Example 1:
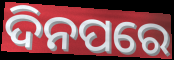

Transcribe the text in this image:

ଦିନପରେ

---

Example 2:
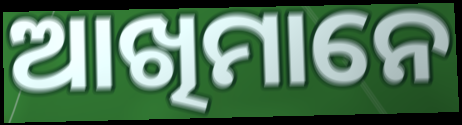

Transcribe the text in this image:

ଆଖିମାନେ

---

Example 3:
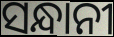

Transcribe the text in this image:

ସନ୍ଧାନୀ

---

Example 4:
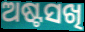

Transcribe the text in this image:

ଅଷ୍ଟସଖି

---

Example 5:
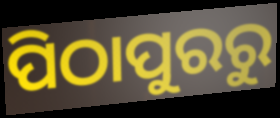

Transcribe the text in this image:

ପିଠାପୁରରୁ